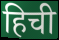
हिची